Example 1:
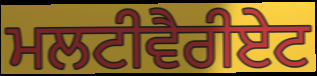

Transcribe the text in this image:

ਮਲਟੀਵੈਰੀਏਟ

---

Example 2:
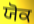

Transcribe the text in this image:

ਯੋਕ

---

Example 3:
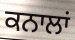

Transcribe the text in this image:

ਕਨਾਲਾਂ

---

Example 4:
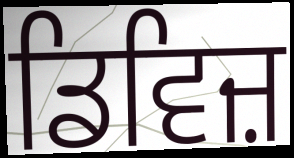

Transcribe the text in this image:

ਡਿਵਿਜ਼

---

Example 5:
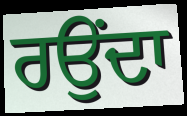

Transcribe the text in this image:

ਰਉਂਦਾ